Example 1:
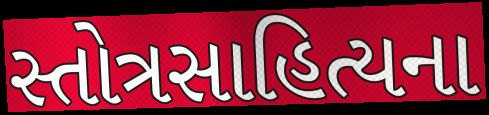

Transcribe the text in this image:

સ્તોત્રસાહિત્યના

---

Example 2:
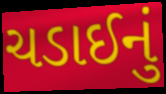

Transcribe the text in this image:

ચડાઈનું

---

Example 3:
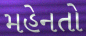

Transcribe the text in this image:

મહેનતો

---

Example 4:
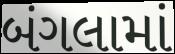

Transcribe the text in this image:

બંગલામાં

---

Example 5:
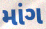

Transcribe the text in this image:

માંગ